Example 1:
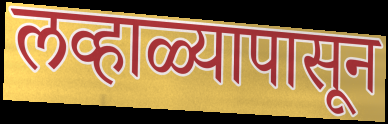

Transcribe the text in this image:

लव्हाळ्यापासून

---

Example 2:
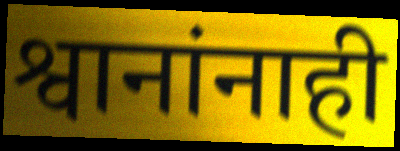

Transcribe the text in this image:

श्वानांनाही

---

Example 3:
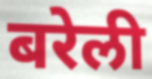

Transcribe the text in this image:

बरेली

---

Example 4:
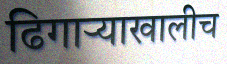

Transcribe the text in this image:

ढिगाऱ्याखालीच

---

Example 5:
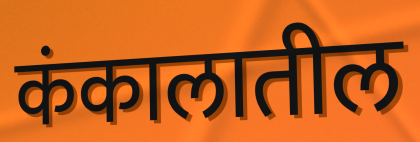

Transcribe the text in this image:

कंकालातील